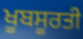
ਖੂਬਸੂਰਤੀ